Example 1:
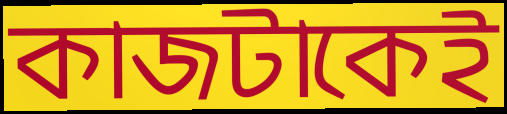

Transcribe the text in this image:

কাজটাকেই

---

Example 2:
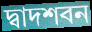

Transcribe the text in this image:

দ্বাদশবন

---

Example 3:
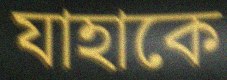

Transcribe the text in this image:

যাহাকে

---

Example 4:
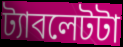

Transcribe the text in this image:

ট্যাবলেটটা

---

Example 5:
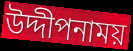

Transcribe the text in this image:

উদ্দীপনাময়